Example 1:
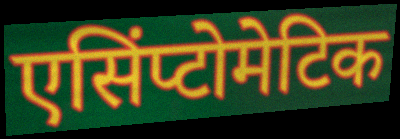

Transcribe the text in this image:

एसिंप्टोमेटिक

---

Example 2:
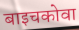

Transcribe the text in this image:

बाइचकोवा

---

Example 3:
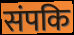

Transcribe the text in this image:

संपकि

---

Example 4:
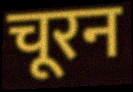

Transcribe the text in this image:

चूरन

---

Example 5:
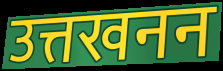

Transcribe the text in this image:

उत्तखनन